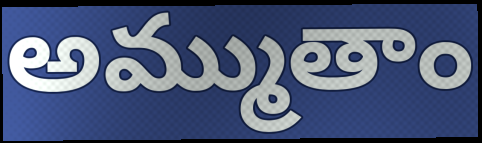
అమ్ముతాం